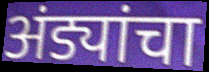
अंड्यांचा